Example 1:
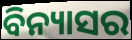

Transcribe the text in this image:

ବିନ୍ୟାସର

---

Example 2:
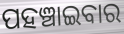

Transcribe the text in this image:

ପହଞ୍ଚାଇବାର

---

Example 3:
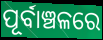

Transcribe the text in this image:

ପୂର୍ବାଞ୍ଚଳରେ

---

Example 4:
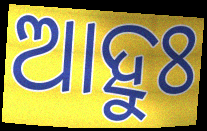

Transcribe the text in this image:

ଆହୁଃ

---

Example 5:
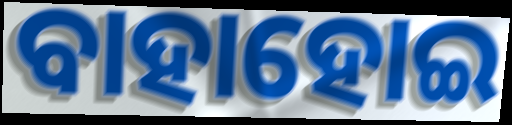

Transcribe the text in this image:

ବାହାହୋଇ